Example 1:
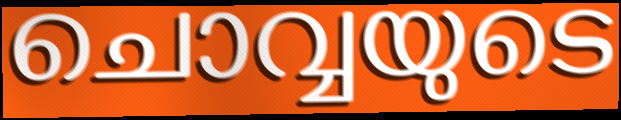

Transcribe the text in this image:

ചൊവ്വയുടെ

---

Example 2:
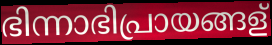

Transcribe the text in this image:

ഭിന്നാഭിപ്രായങ്ങള്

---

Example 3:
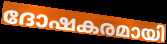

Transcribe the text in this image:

ദോഷകരമായി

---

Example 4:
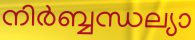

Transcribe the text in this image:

നിർബ്ബന്ധല്യാ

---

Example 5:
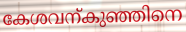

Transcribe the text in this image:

കേശവന്കുഞ്ഞിനെ